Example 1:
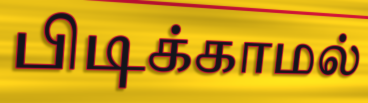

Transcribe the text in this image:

பிடிக்காமல்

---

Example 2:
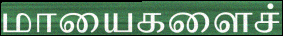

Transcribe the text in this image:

மாயைகளைச்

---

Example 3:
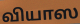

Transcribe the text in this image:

வியாஸ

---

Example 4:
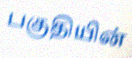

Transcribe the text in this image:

பகுதியின்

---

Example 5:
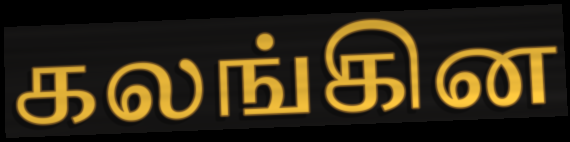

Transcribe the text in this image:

கலங்கின